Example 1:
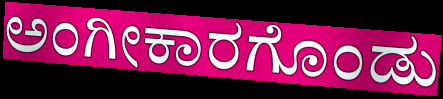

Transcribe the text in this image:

ಅಂಗೀಕಾರಗೊಂಡು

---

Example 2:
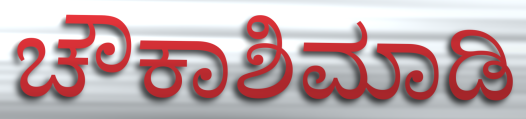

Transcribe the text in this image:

ಚೌಕಾಶಿಮಾಡಿ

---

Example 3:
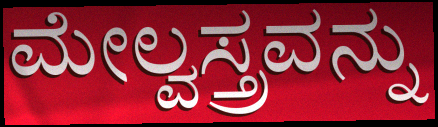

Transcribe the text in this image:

ಮೇಲ್ವಸ್ತ್ರವನ್ನು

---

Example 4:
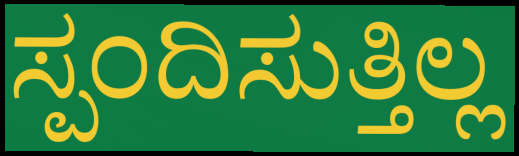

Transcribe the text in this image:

ಸ್ಪಂದಿಸುತ್ತಿಲ್ಲ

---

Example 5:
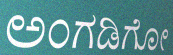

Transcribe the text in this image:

ಅಂಗಡಿಗೋ